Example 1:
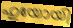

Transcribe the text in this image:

ഹുയോയി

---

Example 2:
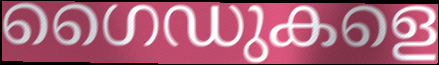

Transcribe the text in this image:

ഗൈഡുകളെ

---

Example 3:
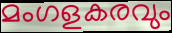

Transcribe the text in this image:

മംഗളകരവും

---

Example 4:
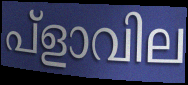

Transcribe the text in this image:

പ്ളാവില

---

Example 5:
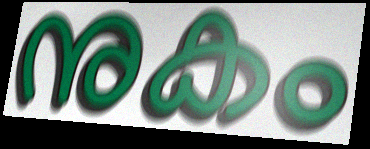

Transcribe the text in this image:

നുകം